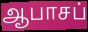
ஆபாசப்